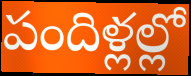
పందిళ్లల్లో